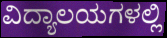
ವಿದ್ಯಾಲಯಗಳಲ್ಲಿ